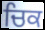
ਚਿਕ